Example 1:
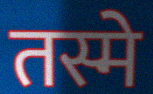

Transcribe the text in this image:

तस्मे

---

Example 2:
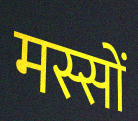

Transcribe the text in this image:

मस्सों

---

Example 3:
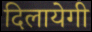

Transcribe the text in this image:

दिलायेगी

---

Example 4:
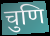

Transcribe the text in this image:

चुणि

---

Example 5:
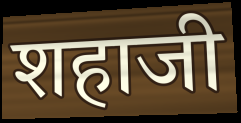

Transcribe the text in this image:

शहाजी